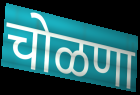
चोळणा